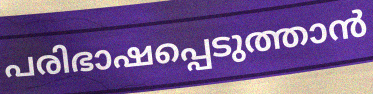
പരിഭാഷപ്പെടുത്താൻ